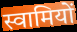
स्वामियों